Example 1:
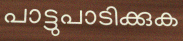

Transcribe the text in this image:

പാട്ടുപാടിക്കുക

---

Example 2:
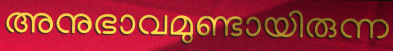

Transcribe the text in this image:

അനുഭാവമുണ്ടായിരുന്ന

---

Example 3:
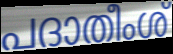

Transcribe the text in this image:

പദാതീംശ്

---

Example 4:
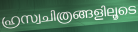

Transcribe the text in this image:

ഹ്രസ്വചിത്രങ്ങളിലൂടെ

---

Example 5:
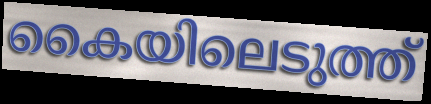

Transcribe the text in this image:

കൈയിലെടുത്ത്